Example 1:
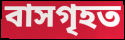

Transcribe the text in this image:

বাসগৃহত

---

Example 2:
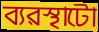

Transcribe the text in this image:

ব্যৱস্থাটো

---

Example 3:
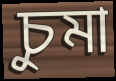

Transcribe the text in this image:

চুমা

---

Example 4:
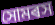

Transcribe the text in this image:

সোমৰস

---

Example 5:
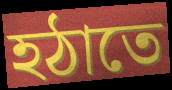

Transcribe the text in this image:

হঠাতে